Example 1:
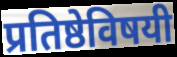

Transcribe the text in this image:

प्रतिष्ठेविषयी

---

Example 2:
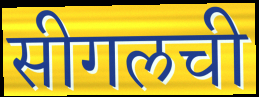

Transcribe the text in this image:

सीगलची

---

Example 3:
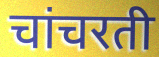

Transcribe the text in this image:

चांचरती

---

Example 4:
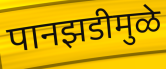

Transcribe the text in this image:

पानझडीमुळे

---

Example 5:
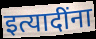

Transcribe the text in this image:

इत्यादींना